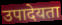
उपादेयता